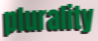
plurality